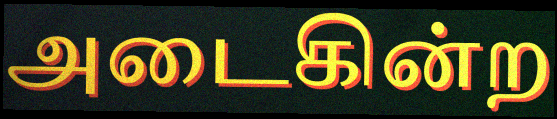
அடைகின்ற